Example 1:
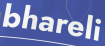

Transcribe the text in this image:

bhareli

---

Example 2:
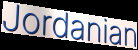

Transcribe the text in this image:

Jordanian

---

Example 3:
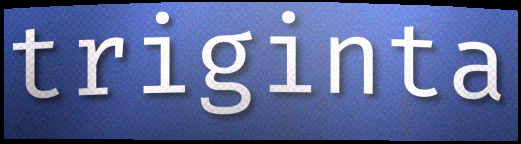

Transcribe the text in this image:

triginta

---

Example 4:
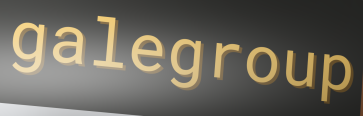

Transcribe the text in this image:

galegroup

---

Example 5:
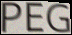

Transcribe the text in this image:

PEG